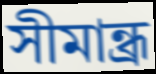
সীমান্ধ্র